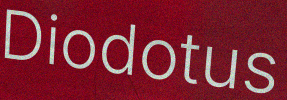
Diodotus